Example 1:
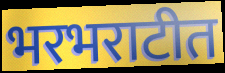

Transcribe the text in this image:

भरभराटीत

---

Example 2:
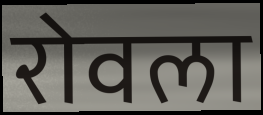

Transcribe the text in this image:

रोवला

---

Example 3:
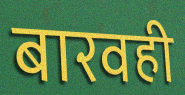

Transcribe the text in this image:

बारवही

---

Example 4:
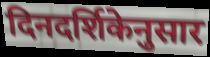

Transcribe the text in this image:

दिनदर्शिकेनुसार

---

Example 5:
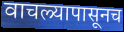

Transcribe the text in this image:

वाचल्यापासूनच